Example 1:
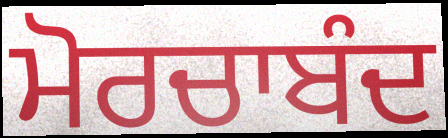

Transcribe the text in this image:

ਮੋਰਚਾਬੰਦ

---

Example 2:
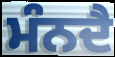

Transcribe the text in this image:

ਮੰਨਦੈ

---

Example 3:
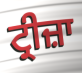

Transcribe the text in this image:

ਟ੍ਰੀਜ਼ਾ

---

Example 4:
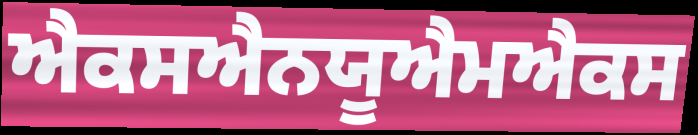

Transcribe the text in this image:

ਐਕਸਐਨਯੂਐਮਐਕਸ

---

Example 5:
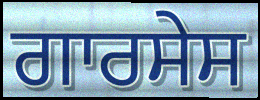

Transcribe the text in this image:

ਗਾਰਸੇਸ